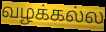
வழக்கல்ல